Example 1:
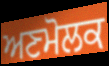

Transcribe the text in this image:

ਅਣਮੋਲਕ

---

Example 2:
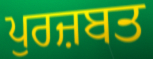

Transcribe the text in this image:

ਪੁਰਜ਼ਬਤ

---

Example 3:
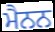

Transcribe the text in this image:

ਮੈਨਨ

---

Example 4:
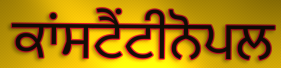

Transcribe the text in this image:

ਕਾਂਸਟੈਂਟੀਨੋਪਲ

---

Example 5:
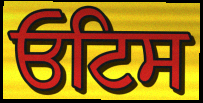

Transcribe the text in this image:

ਓਟਿਸ